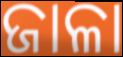
ଜାଳା